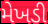
મેખડી